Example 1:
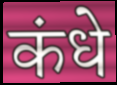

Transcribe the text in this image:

कंधे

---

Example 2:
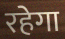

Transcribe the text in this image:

रहेगा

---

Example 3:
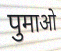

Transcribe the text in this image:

पुमाओ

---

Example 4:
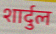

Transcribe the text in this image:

शार्दुल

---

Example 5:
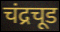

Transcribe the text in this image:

चंद्रचूड